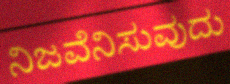
ನಿಜವೆನಿಸುವುದು